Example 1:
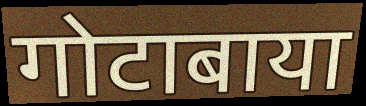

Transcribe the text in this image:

गोटाबाया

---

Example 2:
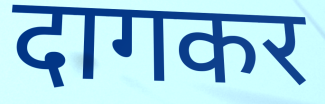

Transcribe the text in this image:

दागकर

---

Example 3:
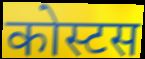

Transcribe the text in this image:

कोस्टस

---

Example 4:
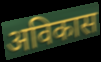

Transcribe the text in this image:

अविकास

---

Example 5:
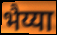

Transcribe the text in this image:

भैय्या